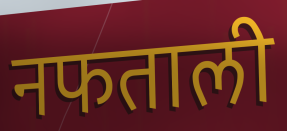
नफताली